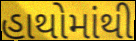
હાથોમાંથી